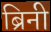
ब्रिनी